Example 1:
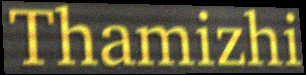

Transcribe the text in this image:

Thamizhi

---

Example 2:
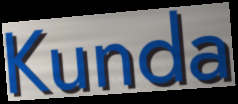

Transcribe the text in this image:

Kunda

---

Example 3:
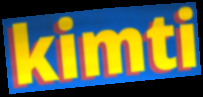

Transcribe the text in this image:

kimti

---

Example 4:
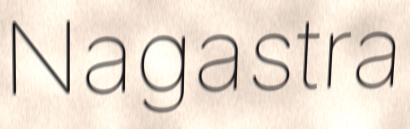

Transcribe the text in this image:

Nagastra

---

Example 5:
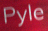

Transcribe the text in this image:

Pyle